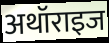
अथॉराइज